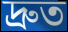
দ্রুত